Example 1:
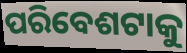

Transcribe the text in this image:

ପରିବେଶଟାକୁ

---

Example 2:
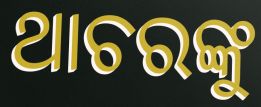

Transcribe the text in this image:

ଥାଚରଙ୍କୁ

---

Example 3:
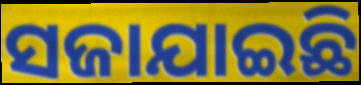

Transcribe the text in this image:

ସଜାଯାଇଛି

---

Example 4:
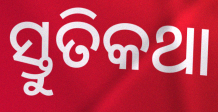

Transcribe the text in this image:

ସ୍ତୁତିକଥା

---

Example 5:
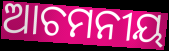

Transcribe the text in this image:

ଆଚମନୀୟ